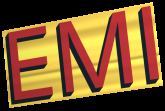
EMI